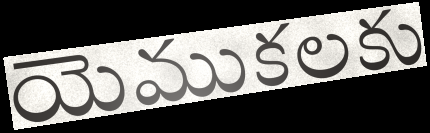
యెముకలకు